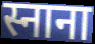
स्नाना